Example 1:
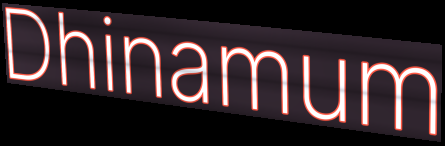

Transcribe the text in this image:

Dhinamum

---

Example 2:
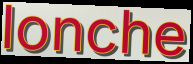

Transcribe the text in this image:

lonche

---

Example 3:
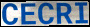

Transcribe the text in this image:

CECRI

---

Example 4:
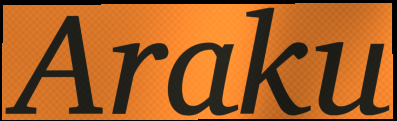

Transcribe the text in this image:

Araku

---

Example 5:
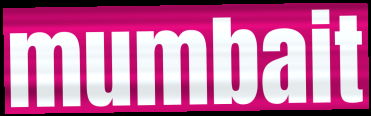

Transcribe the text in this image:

mumbait